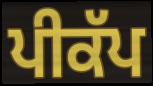
ਪੀਕੱਪ